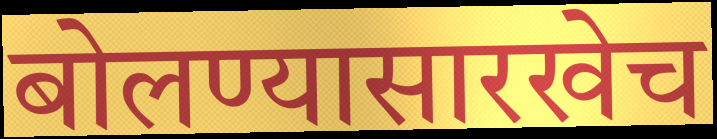
बोलण्यासारखेच